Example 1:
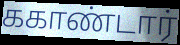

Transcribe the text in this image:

ககாண்டார்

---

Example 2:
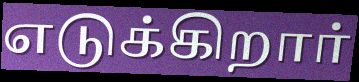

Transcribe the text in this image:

எடுக்கிறார்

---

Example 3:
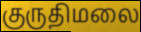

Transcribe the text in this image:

குருதிமலை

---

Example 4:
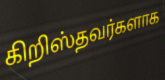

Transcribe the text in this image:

கிறிஸ்தவர்களாக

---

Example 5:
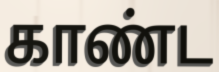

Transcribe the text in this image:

காண்ட